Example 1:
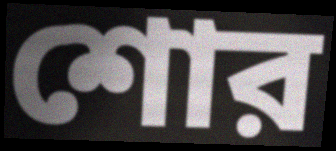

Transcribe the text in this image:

শোর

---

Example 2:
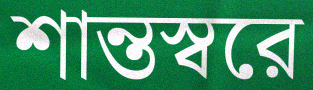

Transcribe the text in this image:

শান্তস্বরে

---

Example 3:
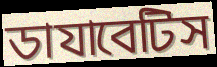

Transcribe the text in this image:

ডাযাবেটিস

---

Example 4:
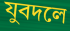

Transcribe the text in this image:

যুবদলে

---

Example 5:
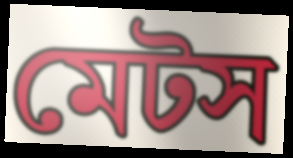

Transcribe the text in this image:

মেটস